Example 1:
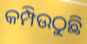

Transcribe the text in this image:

କମ୍ପିଉଠୁଛି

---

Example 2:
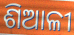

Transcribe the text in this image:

ଶିଆଳୀ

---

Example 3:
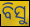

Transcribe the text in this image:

ବିସୁ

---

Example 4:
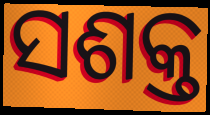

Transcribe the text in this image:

ସଶକ୍ତ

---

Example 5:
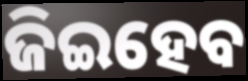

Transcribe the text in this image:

ଜିଇହେବ